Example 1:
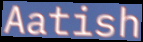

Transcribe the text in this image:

Aatish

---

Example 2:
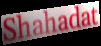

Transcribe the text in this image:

Shahadat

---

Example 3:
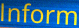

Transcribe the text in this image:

Inform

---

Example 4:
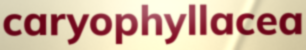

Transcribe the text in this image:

caryophyllacea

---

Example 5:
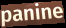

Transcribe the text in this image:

panine